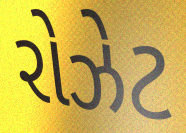
રોઝેટ